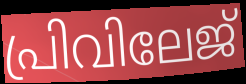
പ്രിവിലേജ്